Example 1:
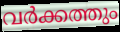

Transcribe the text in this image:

വർക്കത്തും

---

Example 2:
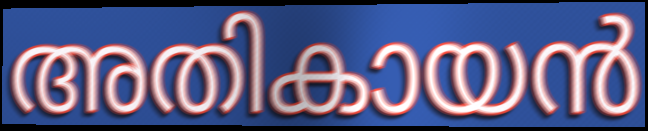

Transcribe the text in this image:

അതികായൻ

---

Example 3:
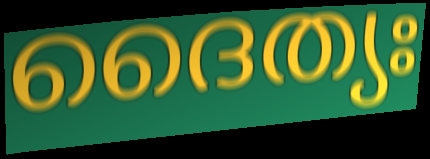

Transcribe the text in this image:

ദൈത്യഃ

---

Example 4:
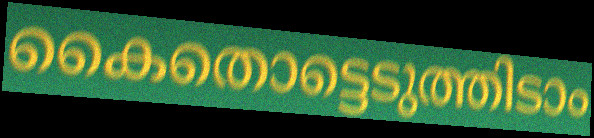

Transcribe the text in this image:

കൈതൊട്ടെടുത്തിടാം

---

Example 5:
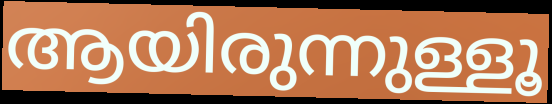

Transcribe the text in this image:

ആയിരുന്നുള്ളൂ